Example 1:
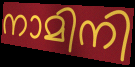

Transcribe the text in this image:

നാമിനി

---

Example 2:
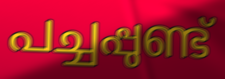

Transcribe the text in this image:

പച്ചപ്പുണ്ട്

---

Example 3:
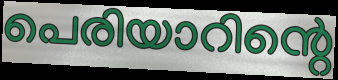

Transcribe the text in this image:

പെരിയാറിന്റെ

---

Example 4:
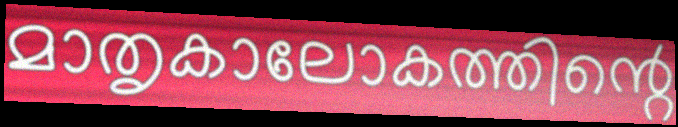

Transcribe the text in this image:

മാതൃകാലോകത്തിന്റെ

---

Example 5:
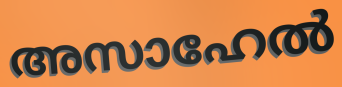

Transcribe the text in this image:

അസാഹേൽ